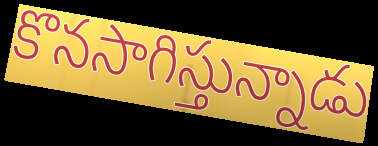
కొనసాగిస్తున్నాడు